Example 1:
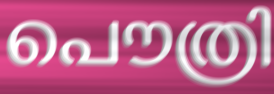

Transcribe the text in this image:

പൌത്രി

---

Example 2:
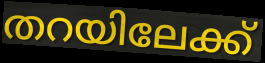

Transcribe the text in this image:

തറയിലേക്ക്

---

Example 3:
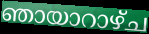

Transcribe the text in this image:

ഞായാറാഴ്ച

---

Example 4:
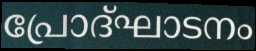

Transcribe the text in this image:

പ്രോദ്ഘാടനം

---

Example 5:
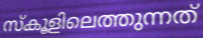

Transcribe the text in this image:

സ്കൂളിലെത്തുന്നത്